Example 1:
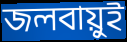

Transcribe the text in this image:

জলবায়ুই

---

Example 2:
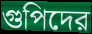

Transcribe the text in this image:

গুপিদের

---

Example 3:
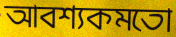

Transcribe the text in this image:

আবশ্যকমতো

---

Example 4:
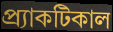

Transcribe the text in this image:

প্র্যাকটিকাল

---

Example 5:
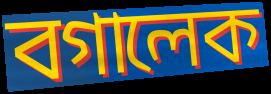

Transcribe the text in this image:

বগালেক